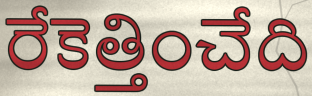
రేకెత్తించేది